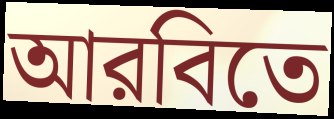
আরবিতে